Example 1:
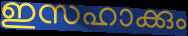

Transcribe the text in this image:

ഇസഹാക്കും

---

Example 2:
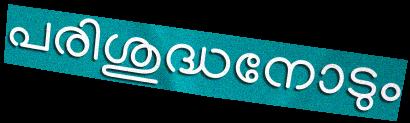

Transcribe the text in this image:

പരിശുദ്ധനോടും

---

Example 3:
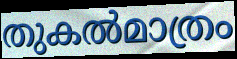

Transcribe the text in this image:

തുകൽമാത്രം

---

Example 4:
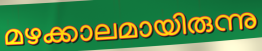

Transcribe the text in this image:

മഴക്കാലമായിരുന്നു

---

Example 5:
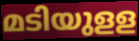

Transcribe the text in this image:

മടിയുളള